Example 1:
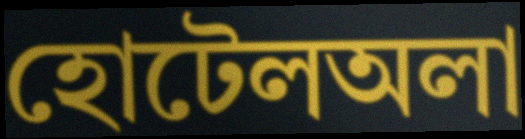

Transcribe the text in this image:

হোটেলঅলা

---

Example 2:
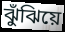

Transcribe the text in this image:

ঝুঁঝিয়ে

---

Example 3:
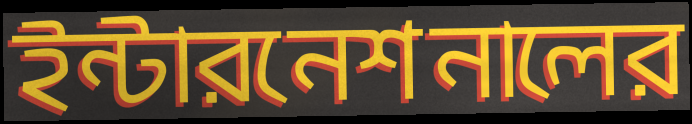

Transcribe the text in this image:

ইন্টারনেশনালের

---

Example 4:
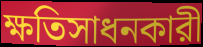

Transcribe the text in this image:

ক্ষতিসাধনকারী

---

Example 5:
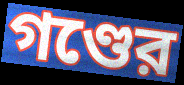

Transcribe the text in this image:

গণ্ডের